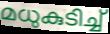
മധുകുടിച്ച്